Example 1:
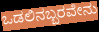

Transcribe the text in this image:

ಒಡಲಿನಬ್ಬರವೇನು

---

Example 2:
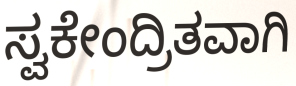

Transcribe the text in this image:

ಸ್ವಕೇಂದ್ರಿತವಾಗಿ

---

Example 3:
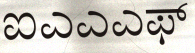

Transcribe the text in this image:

ಐಎಎಎಫ್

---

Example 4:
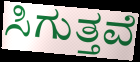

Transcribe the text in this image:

ಸಿಗುತ್ತವೆ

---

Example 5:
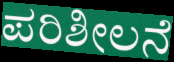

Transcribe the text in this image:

ಪರಿಶೀಲನೆ